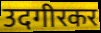
उदगीरकर